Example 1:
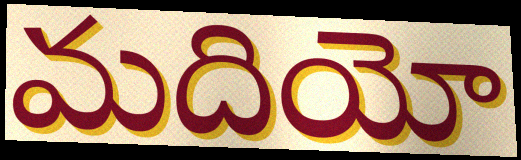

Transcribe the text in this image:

మదియో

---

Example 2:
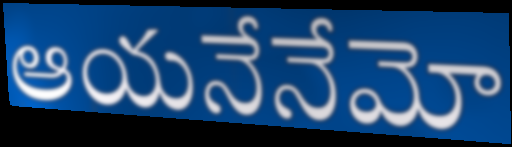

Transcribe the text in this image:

ఆయనేనేమో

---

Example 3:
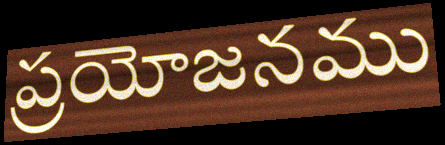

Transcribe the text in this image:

ప్రయోజనము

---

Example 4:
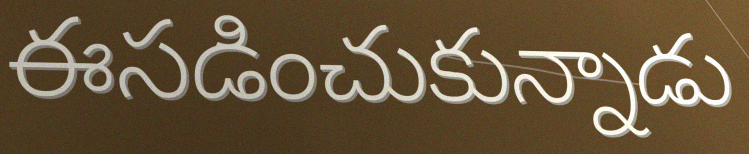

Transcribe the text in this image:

ఈసడించుకున్నాడు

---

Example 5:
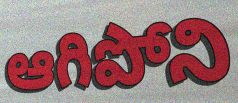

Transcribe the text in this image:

ఆగిపోని